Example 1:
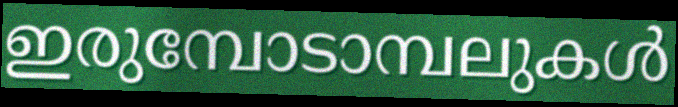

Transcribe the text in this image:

ഇരുമ്പോടാമ്പലുകൾ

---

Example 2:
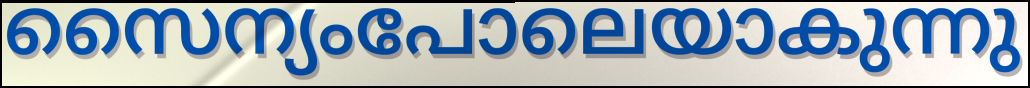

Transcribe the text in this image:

സൈന്യംപോലെയാകുന്നു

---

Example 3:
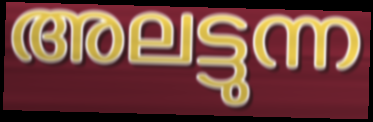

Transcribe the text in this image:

അലട്ടുന്ന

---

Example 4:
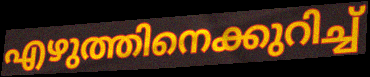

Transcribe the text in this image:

എഴുത്തിനെക്കുറിച്ച്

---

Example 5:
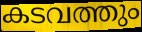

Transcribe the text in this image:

കടവത്തും